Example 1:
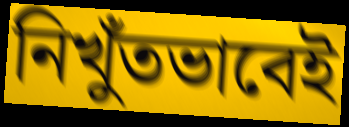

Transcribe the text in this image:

নিখুঁতভাবেই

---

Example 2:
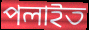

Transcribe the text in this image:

পলাইত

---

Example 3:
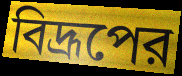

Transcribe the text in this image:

বিদ্রূপের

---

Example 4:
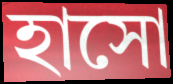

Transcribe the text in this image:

হাসো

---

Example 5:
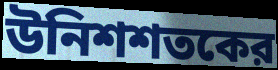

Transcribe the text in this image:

উনিশশতকের